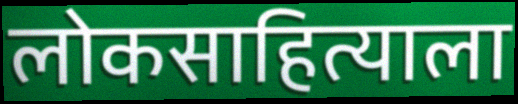
लोकसाहित्याला